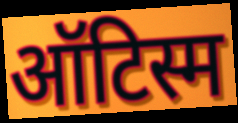
ऑटिस्म